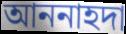
আননাহদা